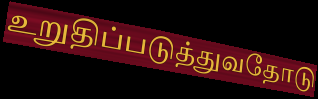
உறுதிப்படுத்துவதோடு